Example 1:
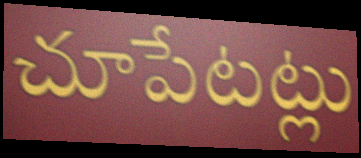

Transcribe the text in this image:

చూపేటట్లు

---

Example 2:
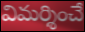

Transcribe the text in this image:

విమర్శించే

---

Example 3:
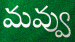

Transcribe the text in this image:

మవ్వు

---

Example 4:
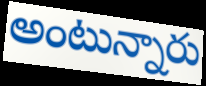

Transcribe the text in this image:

అంటున్నారు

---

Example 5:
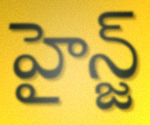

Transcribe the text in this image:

హైన్జ్